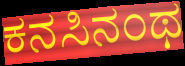
ಕನಸಿನಂಥ